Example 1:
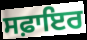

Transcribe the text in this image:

ਸਫ਼ਾਇਰ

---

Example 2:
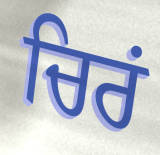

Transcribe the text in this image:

ਚਿਰਂ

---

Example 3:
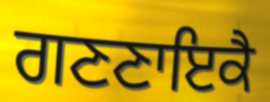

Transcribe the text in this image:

ਗਣਣਾਇਕੈ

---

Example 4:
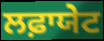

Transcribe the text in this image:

ਲਫ਼ਾਯੇਟ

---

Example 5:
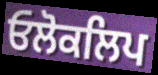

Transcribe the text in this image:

ਓਲੋਕਲਿਪ